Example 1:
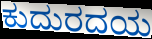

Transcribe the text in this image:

ಕುದುರದಯ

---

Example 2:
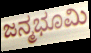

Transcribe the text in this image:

ಜನ್ಮಭೂಮಿ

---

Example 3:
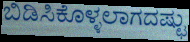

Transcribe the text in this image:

ಬಿಡಿಸಿಕೊಳ್ಳಲಾಗದಷ್ಟು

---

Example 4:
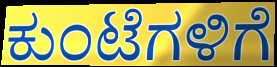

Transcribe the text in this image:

ಕುಂಟೆಗಳಿಗೆ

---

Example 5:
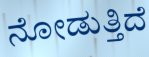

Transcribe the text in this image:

ನೋಡುತ್ತಿದೆ